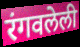
रंगवलेली